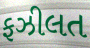
ફઝીલત